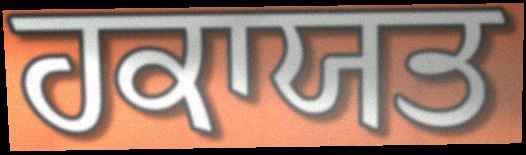
ਹਕਾਯਤ